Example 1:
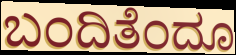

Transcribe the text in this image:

ಬಂದಿತೆಂದೂ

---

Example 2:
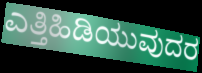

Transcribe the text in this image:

ಎತ್ತಿಹಿಡಿಯುವುದರ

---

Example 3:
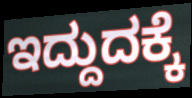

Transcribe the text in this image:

ಇದ್ದುದಕ್ಕೆ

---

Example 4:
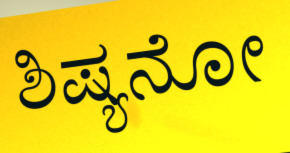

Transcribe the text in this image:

ಶಿಷ್ಯನೋ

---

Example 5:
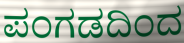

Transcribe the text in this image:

ಪಂಗಡದಿಂದ